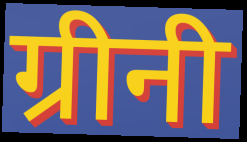
ग्रीनी